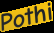
Pothi